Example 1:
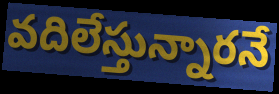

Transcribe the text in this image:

వదిలేస్తున్నారనే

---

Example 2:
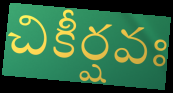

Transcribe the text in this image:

చికీర్షవః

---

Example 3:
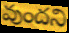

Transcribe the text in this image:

వుందని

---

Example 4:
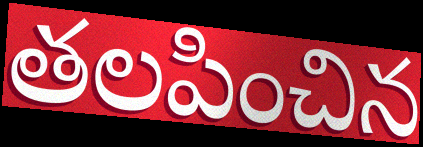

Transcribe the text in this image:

తలపించిన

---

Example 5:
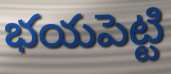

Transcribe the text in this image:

భయపెట్టి